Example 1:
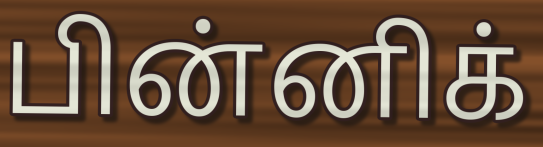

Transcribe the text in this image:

பின்னிக்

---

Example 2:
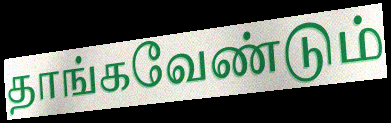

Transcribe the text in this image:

தாங்கவேண்டும்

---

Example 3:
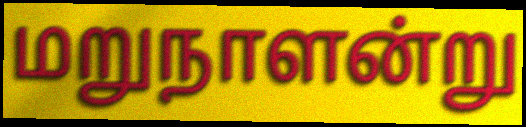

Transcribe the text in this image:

மறுநாளன்று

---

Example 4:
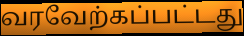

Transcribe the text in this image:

வரவேற்கப்பட்டது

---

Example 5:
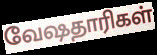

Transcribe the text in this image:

வேஷதாரிகள்